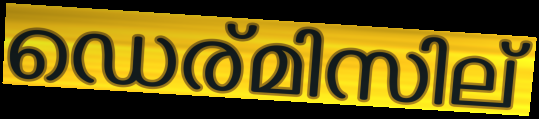
ഡെര്മിസില്